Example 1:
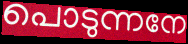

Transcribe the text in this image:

പൊടുന്നനേ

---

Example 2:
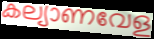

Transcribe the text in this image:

കല്യാണവേള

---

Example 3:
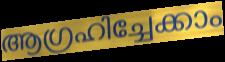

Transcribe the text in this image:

ആഗ്രഹിച്ചേക്കാം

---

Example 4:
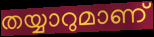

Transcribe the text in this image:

തയ്യാറുമാണ്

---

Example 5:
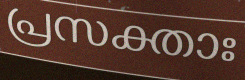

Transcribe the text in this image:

പ്രസക്താഃ